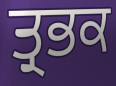
ਤ੍ਰਭਕ